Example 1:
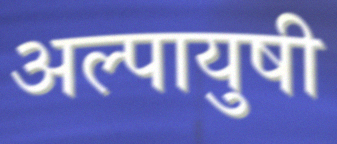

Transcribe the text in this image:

अल्पायुषी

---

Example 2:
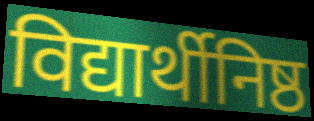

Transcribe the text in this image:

विद्यार्थीनिष्ठ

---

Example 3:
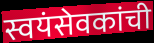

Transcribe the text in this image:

स्वयंसेवकांची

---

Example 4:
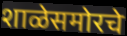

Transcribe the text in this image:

शाळेसमोरचे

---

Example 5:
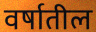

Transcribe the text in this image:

वर्षातील